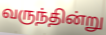
வருந்தின்று